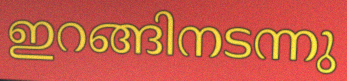
ഇറങ്ങിനടന്നു